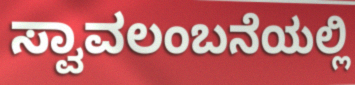
ಸ್ವಾವಲಂಬನೆಯಲ್ಲಿ